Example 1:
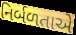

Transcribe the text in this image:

નિર્બળતાએ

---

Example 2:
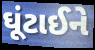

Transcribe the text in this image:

ઘૂંટાઈને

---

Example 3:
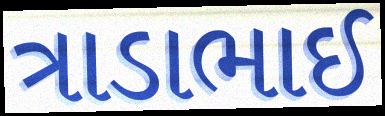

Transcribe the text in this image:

ત્રાડાભાઈ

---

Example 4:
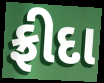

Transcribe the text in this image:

ફ્રીદા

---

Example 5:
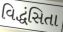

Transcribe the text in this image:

વિદ્ધંસિતા